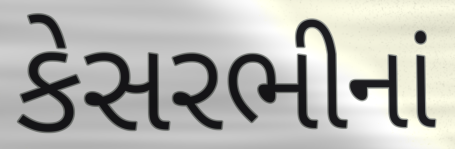
કેસરભીનાં